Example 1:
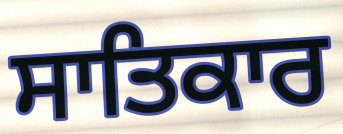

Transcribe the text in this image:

ਸਾਤਿਕਾਰ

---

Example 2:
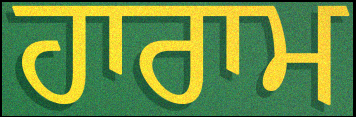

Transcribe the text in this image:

ਹਾਰਾਮ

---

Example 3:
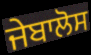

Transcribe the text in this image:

ਜੇਬਾਲੋਸ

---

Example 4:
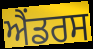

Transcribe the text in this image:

ਐਂਡਰਸ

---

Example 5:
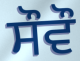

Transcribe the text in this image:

ਸੌਵੌ